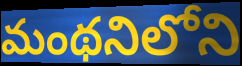
మంథనిలోని